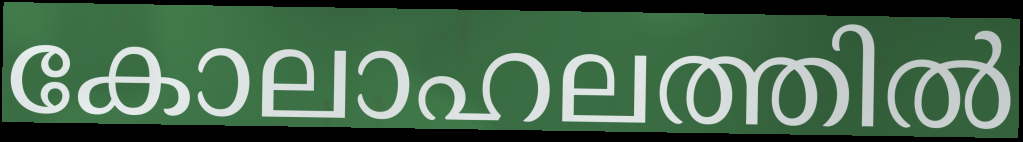
കോലാഹലത്തിൽ